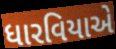
ધારવિયાએ